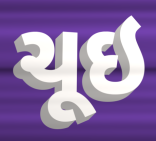
ચૂઇ